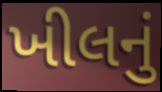
ખીલનું